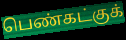
பெண்கட்குக்